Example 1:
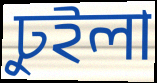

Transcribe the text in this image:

ঢুইলা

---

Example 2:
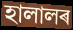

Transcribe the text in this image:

হালালৰ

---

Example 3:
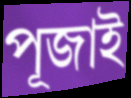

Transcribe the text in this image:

পূজাই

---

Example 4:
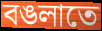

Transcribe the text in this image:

বঙলাতে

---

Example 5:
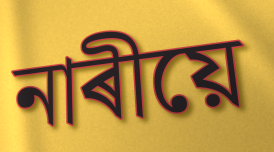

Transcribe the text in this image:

নাৰীয়ে